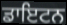
ਡਾਇਟਨ